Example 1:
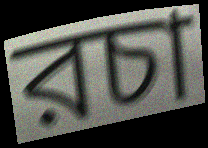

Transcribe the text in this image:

রচা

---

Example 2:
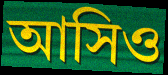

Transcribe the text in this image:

আসিও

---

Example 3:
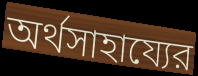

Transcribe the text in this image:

অর্থসাহায্যের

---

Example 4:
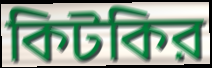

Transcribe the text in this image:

কিটকির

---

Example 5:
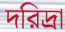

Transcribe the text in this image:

দরিদ্রা